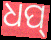
ଧପ୍